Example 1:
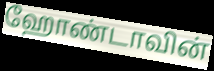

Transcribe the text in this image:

ஹோண்டாவின்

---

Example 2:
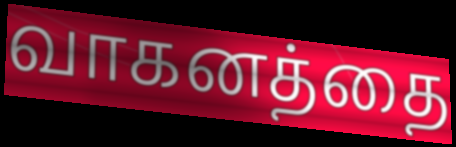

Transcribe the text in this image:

வாகனத்தை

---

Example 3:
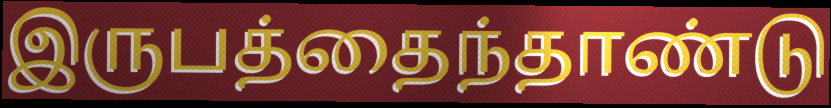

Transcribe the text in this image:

இருபத்தைந்தாண்டு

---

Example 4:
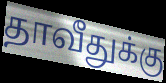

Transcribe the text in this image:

தாவீதுக்கு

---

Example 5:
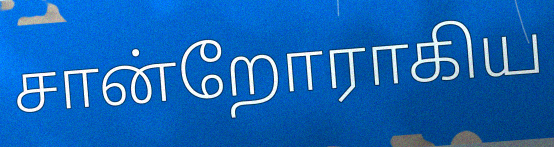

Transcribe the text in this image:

சான்றோராகிய